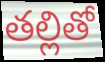
తల్లితో